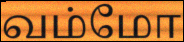
வம்மோ